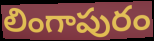
లింగాపురం